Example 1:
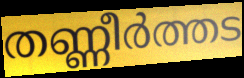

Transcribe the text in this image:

തണ്ണീർത്തട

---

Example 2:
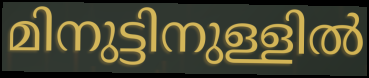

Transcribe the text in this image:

മിനുട്ടിനുള്ളിൽ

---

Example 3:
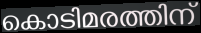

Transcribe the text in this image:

കൊടിമരത്തിന്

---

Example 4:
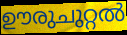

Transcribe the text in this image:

ഊരുചുറ്റൽ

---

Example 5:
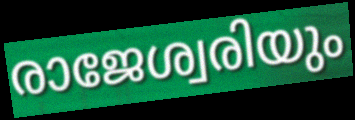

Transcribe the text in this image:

രാജേശ്വരിയും